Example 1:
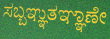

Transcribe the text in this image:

ಸಬ್ಬಞ್ಞುತಞ್ಞಾಣೇ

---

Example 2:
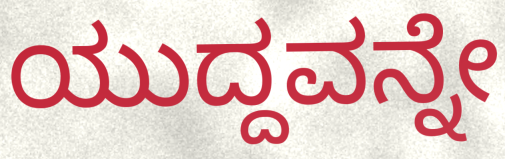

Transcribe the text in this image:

ಯುದ್ದವನ್ನೇ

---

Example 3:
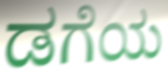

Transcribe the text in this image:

ಡಗೆಯ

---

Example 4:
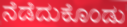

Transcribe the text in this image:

ನೆಡೆದುಕೊಂಡು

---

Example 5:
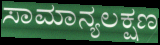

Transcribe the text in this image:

ಸಾಮಾನ್ಯಲಕ್ಷಣ